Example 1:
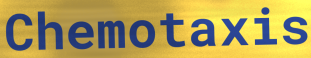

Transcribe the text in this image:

Chemotaxis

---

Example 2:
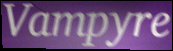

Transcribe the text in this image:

Vampyre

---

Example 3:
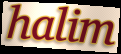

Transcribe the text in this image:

halim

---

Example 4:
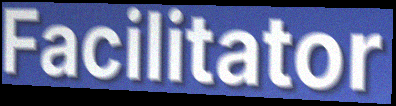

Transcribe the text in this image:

Facilitator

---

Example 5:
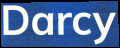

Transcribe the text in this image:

Darcy